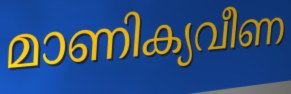
മാണിക്യവീണ